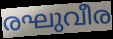
രഘുവീര